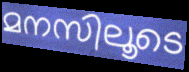
മനസിലൂടെ